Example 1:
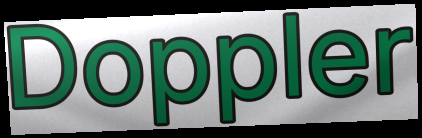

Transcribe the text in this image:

Doppler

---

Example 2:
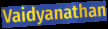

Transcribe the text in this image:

Vaidyanathan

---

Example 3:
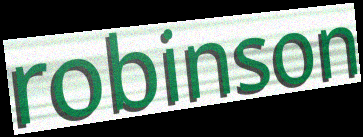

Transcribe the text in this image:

robinson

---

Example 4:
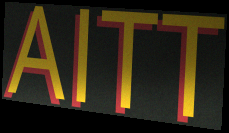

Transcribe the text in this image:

AITT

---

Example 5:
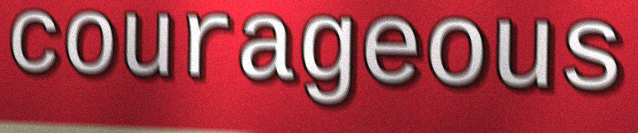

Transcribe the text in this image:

courageous